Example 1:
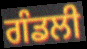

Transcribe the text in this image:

ਗੰਡਲੀ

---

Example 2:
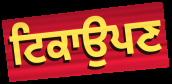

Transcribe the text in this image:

ਟਿਕਾਉਪਣ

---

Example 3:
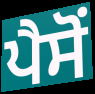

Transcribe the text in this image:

ਪੈਸੋਂ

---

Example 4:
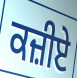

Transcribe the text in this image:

ਕਜ਼ੀਏ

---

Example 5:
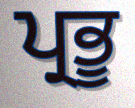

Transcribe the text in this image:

ਪ੍ਰਭੂ